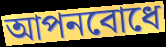
আপনবোধে